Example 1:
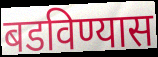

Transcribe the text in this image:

बडविण्यास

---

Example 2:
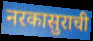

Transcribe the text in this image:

नरकासुराची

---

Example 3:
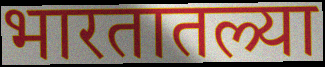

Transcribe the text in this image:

भारतातल्या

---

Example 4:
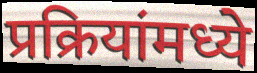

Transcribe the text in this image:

प्रक्रियांमध्ये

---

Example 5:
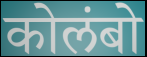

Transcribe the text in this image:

कोलंबो